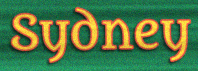
Sydney